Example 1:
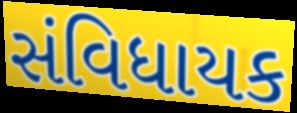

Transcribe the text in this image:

સંવિધાયક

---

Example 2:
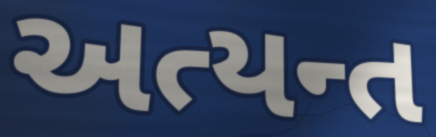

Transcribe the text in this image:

અત્યન્ત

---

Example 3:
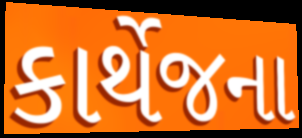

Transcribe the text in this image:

કાર્થેજના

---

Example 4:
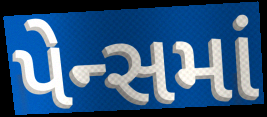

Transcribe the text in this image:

પેન્સમાં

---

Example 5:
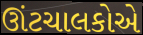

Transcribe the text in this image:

ઊંટચાલકોએ